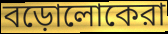
বড়োলোকেরা